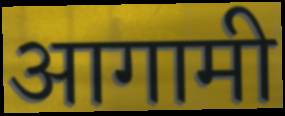
आगामी